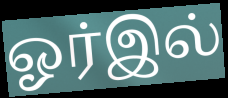
ஓர்இல்